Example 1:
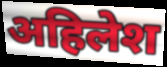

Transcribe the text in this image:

अहिलेश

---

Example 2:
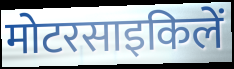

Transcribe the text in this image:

मोटरसाइकिलें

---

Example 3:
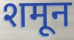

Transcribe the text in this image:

शमून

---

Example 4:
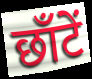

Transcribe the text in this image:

छाँटें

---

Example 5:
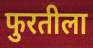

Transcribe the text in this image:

फुरतीला